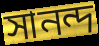
সানন্দ